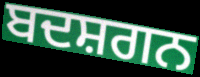
ਬਦਸ਼ਗਨ